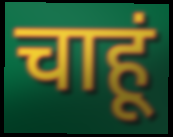
चाहूं